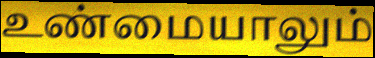
உண்மையாலும்